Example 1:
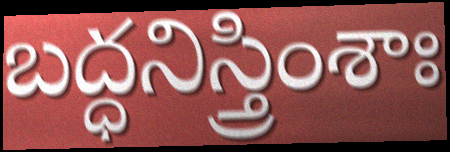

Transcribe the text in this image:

బద్ధనిస్త్రింశాః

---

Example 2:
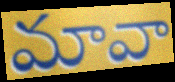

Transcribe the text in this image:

మావా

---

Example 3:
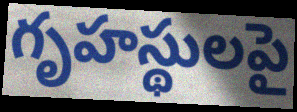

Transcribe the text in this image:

గృహస్థులపై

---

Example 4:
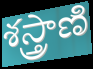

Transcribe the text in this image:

శస్త్రాణి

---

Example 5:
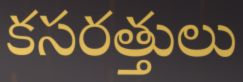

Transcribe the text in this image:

కసరత్తులు